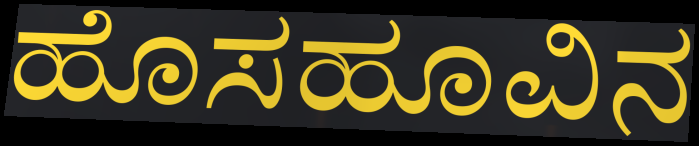
ಹೊಸಹೂವಿನ